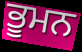
ਭੂਮਨ